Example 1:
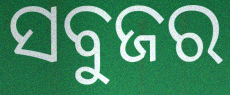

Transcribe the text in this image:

ସବୁଜର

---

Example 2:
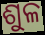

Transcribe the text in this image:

ଶୁଳ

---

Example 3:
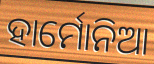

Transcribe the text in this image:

ହାର୍ମୋନିଆ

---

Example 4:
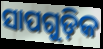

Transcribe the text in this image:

ସାପଗୁଡ଼ିକ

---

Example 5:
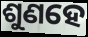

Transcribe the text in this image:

ଶୁଣହେ